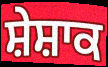
ਸ਼ੇਸ਼ਾਕ